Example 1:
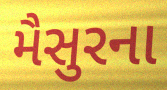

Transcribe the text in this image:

મૈસુરના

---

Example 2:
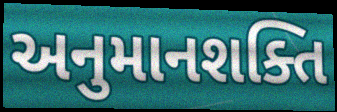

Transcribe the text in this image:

અનુમાનશક્તિ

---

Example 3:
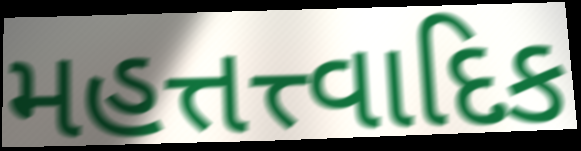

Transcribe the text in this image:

મહત્તત્ત્વાદિક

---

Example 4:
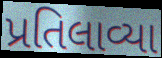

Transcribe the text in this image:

પ્રતિલાવ્યા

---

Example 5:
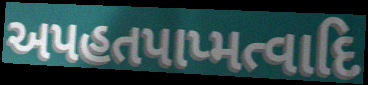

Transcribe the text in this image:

અપહતપાપ્મત્વાદિ